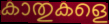
കാതുകളെ